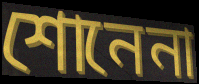
শোনেনা